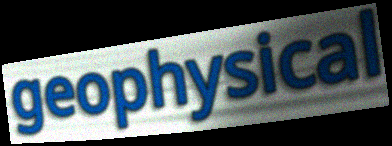
geophysical